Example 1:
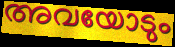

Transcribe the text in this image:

അവയോടും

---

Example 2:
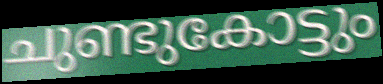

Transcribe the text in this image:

ചുണ്ടുകോട്ടും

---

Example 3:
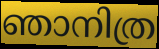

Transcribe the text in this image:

ഞാനിത്ര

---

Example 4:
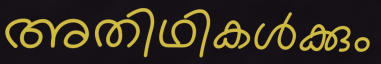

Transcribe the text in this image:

അതിഥികൾക്കും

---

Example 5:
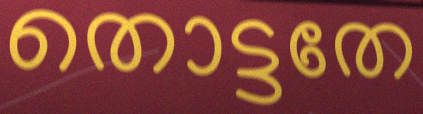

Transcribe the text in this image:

തൊട്ടതേ